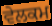
ਵੇਲਕਮ